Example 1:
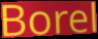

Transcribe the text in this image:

Borel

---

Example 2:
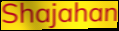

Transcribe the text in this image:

Shajahan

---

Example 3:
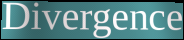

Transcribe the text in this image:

Divergence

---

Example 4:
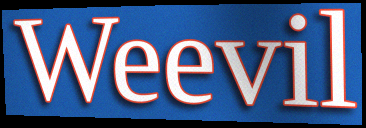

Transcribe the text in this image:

Weevil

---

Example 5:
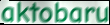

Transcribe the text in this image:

aktobaru